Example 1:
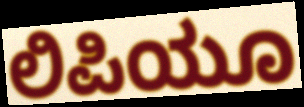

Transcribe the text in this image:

ಲಿಪಿಯೂ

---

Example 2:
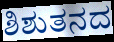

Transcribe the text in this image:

ಶಿಶುತನದ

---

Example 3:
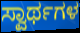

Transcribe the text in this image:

ಸ್ವಾರ್ಥಗಳ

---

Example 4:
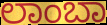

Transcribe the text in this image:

ಲಾಂಬಾ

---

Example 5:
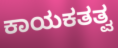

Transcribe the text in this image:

ಕಾಯಕತತ್ವ